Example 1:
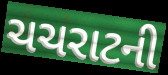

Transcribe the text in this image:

ચચરાટની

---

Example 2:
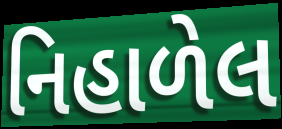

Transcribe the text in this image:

નિહાળેલ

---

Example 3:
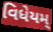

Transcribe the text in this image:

વિધેયમ્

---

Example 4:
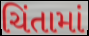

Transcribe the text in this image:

ચિંતામાં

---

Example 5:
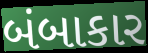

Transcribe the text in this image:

બંબાકાર